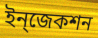
ইন্‌জেকশন